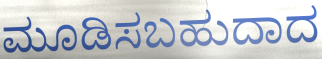
ಮೂಡಿಸಬಹುದಾದ